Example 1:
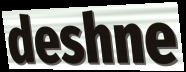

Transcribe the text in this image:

deshne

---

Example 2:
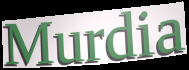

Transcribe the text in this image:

Murdia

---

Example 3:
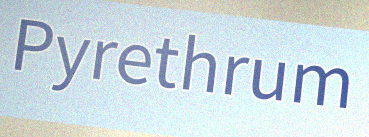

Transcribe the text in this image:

Pyrethrum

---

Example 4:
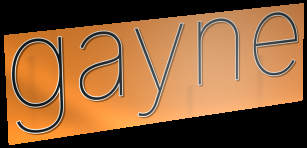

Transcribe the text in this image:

gayne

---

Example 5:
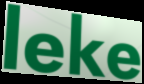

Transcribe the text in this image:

leke